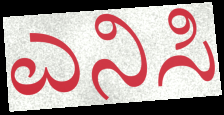
ಎನಿಸಿ